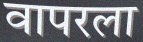
वापरला